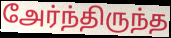
அேர்ந்திருந்த